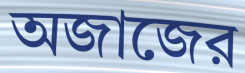
অজাজের